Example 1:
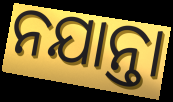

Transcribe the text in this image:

ନଯାନ୍ତା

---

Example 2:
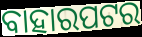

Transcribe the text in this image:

ବାହାରପଟର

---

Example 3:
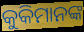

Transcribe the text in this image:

କୁକିମାନଙ୍କ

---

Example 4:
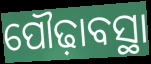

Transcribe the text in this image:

ପୌଢ଼ାବସ୍ଥା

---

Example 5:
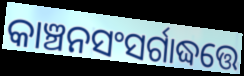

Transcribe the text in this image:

କାଞ୍ଚନସଂସର୍ଗାଦ୍ଧତ୍ତେ